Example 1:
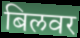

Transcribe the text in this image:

बिलवर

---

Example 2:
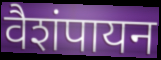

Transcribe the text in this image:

वैशंपायन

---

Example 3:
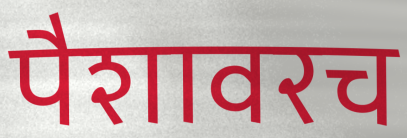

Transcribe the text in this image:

पैशावरच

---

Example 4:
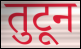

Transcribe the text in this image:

तुटून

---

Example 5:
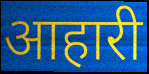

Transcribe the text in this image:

आहारी